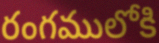
రంగములోకి